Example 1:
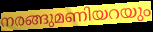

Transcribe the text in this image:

നരങ്ങുമണിയറയും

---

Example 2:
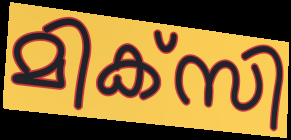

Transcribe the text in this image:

മിക്‌സി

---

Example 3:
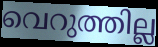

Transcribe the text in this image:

വെറുത്തില്ല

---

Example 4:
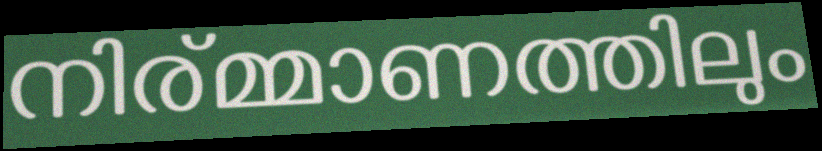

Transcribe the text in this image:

നിര്മ്മാണത്തിലും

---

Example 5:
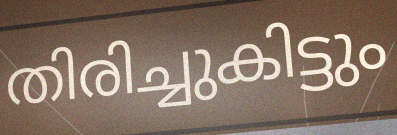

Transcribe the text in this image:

തിരിച്ചുകിട്ടും